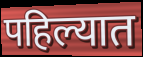
पहिल्यात